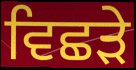
ਵਿਛੜੇ